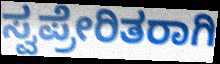
ಸ್ವಪ್ರೇರಿತರಾಗಿ